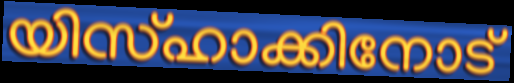
യിസ്ഹാക്കിനോട്